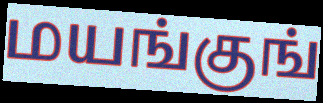
மயங்குங்